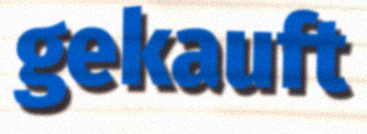
gekauft